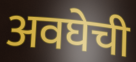
अवघेची